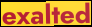
exalted